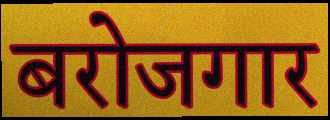
बरोजगार